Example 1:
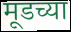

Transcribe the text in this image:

मूडच्या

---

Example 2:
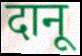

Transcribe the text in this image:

दानू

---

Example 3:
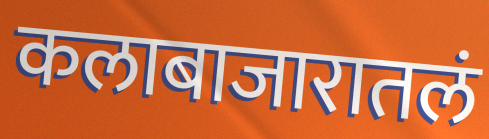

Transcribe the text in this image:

कलाबाजारातलं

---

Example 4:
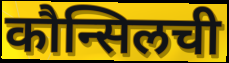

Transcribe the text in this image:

कौन्सिलची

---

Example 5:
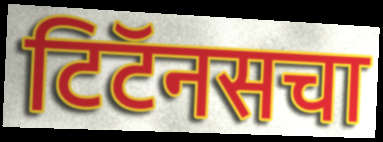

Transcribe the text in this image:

टिटॅनसचा